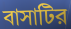
বাসাটির